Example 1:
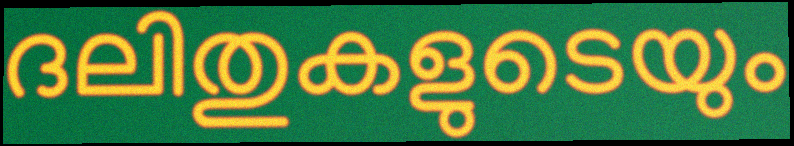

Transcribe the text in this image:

ദലിതുകളുടെയും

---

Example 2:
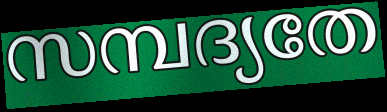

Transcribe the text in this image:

സമ്പദ്യതേ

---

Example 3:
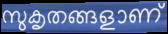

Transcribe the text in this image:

സുകൃതങ്ങളാണ്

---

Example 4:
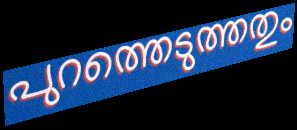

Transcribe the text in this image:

പുറത്തെടുത്തതും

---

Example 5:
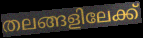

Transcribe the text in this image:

തലങ്ങളിലേക്ക്